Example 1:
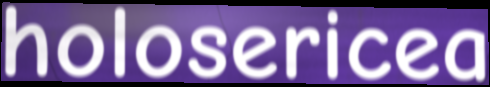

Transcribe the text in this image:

holosericea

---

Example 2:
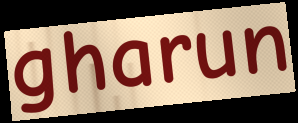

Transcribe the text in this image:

gharun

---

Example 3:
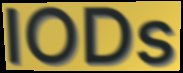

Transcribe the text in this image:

IODs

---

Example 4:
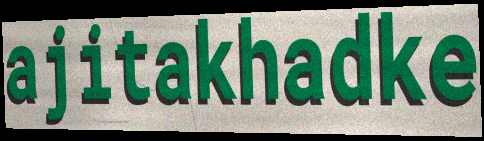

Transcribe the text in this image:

ajitakhadke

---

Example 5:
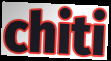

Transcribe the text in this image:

chiti